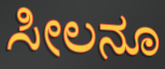
ಸೀಲನೂ